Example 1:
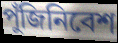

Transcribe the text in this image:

পুঁজিনিবেশ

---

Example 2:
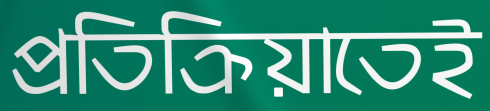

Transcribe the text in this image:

প্রতিক্রিয়াতেই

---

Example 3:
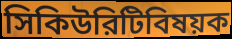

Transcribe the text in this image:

সিকিউরিটিবিষয়ক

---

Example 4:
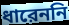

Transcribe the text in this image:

ধারেননি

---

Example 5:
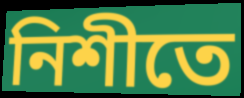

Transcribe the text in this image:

নিশীতে